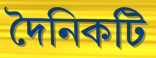
দৈনিকটি